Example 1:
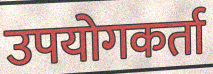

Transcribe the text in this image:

उपयोगकर्ता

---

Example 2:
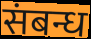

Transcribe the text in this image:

संबन्ध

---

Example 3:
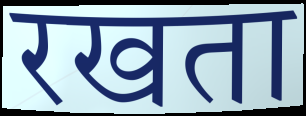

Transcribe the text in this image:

रखता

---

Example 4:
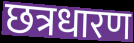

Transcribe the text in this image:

छत्रधारण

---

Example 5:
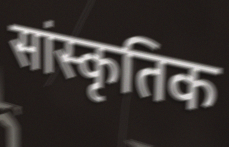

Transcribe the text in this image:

सांस्कृतिक